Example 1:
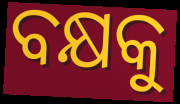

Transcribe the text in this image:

ବକ୍ଷକୁ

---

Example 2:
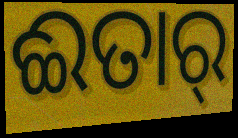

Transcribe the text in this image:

ଈତାର୍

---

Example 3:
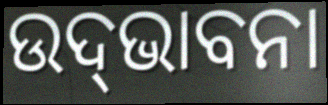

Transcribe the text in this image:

ଉଦ୍‍ଭାବନା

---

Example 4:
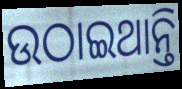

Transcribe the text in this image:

ଉଠାଇଥାନ୍ତି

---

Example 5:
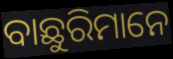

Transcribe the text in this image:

ବାଛୁରିମାନେ